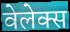
वेलेक्स